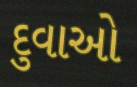
દુવાઓ